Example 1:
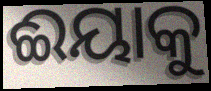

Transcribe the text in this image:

ଈୟାକୁ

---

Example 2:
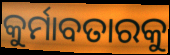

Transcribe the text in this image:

କୁର୍ମାବତାରକୁ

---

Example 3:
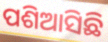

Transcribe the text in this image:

ପଶିଆସିଛି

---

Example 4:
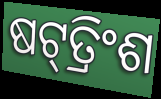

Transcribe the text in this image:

ଷଟ୍‌ତ୍ରିଂଶ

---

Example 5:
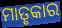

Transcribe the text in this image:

ମାତୃକାର